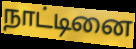
நாட்டினை